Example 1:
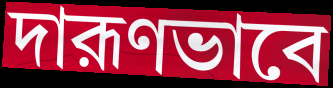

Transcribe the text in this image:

দারূণভাবে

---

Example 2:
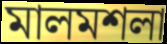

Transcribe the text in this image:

মালমশলা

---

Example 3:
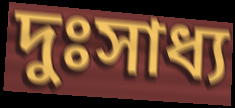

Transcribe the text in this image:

দুঃসাধ্য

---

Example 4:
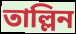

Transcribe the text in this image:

তাল্লিন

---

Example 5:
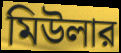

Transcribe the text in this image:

মিউলার